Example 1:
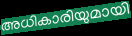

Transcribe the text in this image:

അധികാരിയുമായി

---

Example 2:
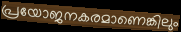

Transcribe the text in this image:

പ്രയോജനകരമാണെങ്കിലും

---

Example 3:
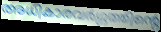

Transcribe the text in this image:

അധികാരവർഗ്ഗത്തിന്റെ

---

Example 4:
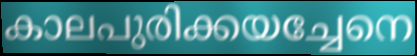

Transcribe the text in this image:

കാലപുരിക്കയച്ചേനെ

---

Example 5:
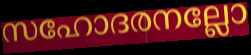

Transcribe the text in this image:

സഹോദരനല്ലോ